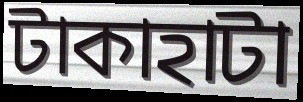
টাকাহাটা